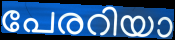
പേരറിയാ